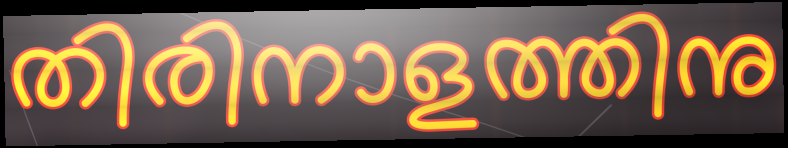
തിരിനാളത്തിനു